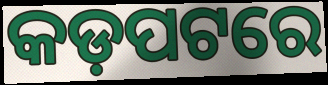
କଡ଼ପଟରେ